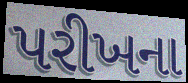
પરીખના